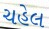
ચહેલ